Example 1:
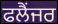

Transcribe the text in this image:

ਫਲੈਂਜਰ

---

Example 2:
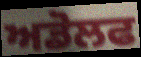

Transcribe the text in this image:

ਅਡੋਲਫ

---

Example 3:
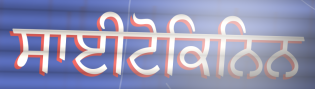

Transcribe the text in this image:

ਸਾਈਟੋਕਿਨਿਨ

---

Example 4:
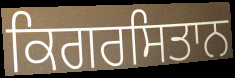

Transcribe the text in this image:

ਕਿਗਰਸਿਤਾਨ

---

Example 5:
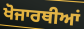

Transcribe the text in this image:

ਖੋਜਾਰਥੀਆਂ